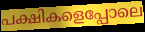
പക്ഷികളെപ്പോലെ